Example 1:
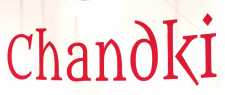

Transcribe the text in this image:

Chandki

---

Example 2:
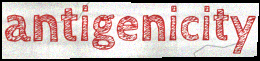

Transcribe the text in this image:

antigenicity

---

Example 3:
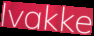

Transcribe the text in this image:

Ivakke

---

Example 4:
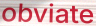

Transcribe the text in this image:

obviate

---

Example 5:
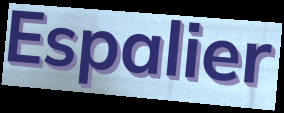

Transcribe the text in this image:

Espalier